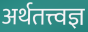
अर्थतत्त्वज्ञ